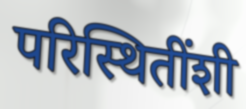
परिस्थितींशी